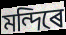
মন্দিৰে